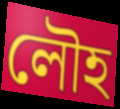
লৌহ